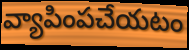
వ్యాపింపచేయటం